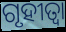
ଗୃହୀତ୍ଵା